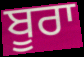
ਬੂਰਾ